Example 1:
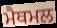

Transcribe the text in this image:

ਮੈਥਮਲ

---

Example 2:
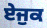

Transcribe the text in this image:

ਏਜੁਕ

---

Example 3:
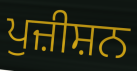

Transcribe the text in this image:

ਪੁਜ਼ੀਸ਼ਨ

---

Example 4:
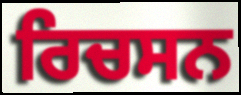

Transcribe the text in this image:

ਰਿਚਸਨ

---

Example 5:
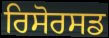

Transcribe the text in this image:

ਰਿਸੋਰਸਡ